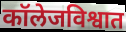
कॉलेजविश्वात